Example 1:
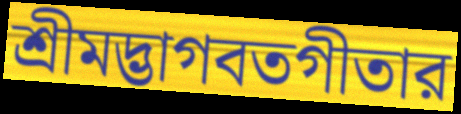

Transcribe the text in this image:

শ্রীমদ্ভাগবতগীতার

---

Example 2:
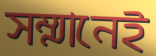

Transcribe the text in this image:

সম্মানেই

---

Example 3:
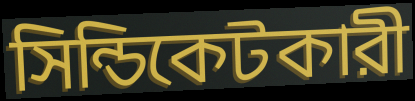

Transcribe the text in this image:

সিন্ডিকেটকারী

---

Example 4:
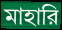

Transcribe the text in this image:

মাহারি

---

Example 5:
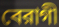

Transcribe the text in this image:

বেরাগী